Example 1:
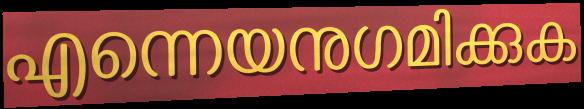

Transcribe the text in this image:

എന്നെയനുഗമിക്കുക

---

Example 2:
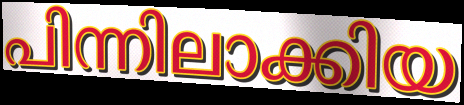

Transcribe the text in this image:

പിന്നിലാക്കിയ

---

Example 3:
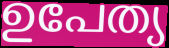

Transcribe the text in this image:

ഉപേത്യ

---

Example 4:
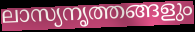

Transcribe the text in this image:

ലാസ്യനൃത്തങ്ങളും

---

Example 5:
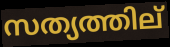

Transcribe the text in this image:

സത്യത്തില്